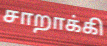
சாறாக்கி